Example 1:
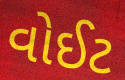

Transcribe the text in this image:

વોઈટ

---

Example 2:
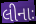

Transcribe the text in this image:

લીનાઃ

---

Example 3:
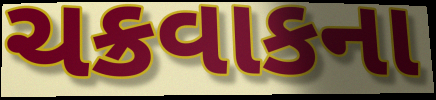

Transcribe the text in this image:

ચક્રવાકના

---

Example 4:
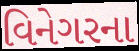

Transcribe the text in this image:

વિનેગરના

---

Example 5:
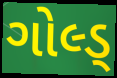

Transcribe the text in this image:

ગોલ્ડ્